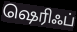
ஷெரிஃப்